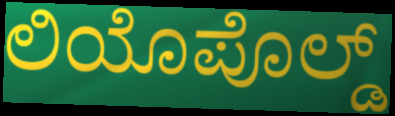
ಲಿಯೊಪೊಲ್ಡ್